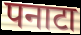
पनाटा